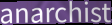
anarchist